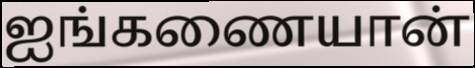
ஐங்கணையான்